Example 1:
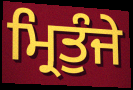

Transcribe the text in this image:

ਮ੍ਰਿਤੁੰਜੇ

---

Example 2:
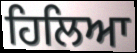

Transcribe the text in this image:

ਹਿਲਿਆ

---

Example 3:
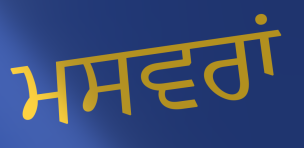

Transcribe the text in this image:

ਮਸਵਰਾਂ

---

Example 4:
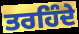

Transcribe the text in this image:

ਤਰਹਿੰਦੇ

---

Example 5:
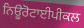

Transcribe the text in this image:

ਨਿਊਰੋਟਾਈਪੀਕਲ